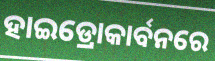
ହାଇଡ୍ରୋକାର୍ବନରେ